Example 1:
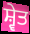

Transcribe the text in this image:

ਸ਼੍ਵੇਤ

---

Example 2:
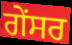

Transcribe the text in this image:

ਗੇਂਸਰ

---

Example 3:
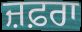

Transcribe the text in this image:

ਜ਼ਫ਼ਰਾ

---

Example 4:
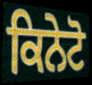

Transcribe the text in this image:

ਕਿਨੇਟੋ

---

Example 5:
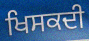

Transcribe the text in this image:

ਖਿਸਕਦੀ